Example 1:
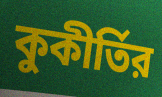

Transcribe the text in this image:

কুকীর্তির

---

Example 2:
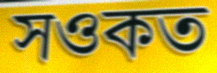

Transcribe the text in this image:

সওকত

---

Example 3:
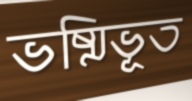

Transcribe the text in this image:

ভষ্মিভূত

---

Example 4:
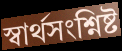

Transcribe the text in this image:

স্বার্থসংশ্নিষ্ট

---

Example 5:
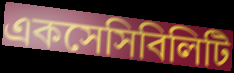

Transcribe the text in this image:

একসেসিবিলিটি